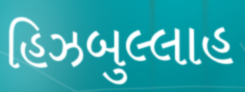
હિઝબુલ્લાહ